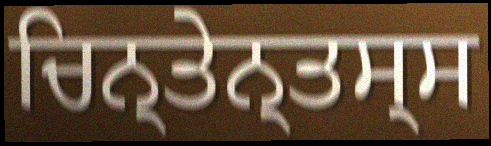
ਚਿਨ੍ਤੇਨ੍ਤਸ੍ਸ